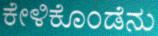
ಕೇಳಿಕೊಂಡೆನು